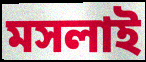
মসলাই